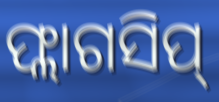
ଫ୍ଲାଗସିପ୍